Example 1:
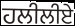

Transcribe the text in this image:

ਹਲੀਲੀਏ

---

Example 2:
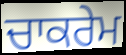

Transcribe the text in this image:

ਚਾਕਰੇਮ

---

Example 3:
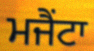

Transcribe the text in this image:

ਮਜੈਂਟਾ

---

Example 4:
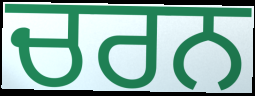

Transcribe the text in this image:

ਚਰਨ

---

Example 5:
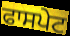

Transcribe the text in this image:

ਫਾਸਪੇਟ